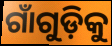
ଗାଁଗୁଡ଼ିକୁ